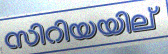
സിറിയയില്